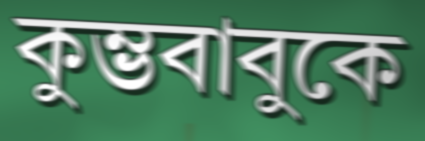
কুম্ভবাবুকে